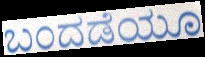
ಬಂದಡೆಯೂ